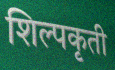
शिल्पकृती